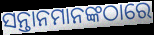
ସନ୍ତାନମାନଙ୍କଠାରେ